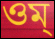
ওম্